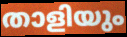
താളിയും